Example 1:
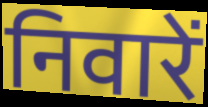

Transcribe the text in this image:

निवारें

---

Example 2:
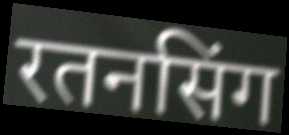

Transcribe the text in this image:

रतनसिंग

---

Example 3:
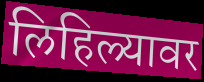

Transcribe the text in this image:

लिहिल्यावर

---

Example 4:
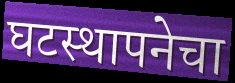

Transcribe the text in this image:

घटस्थापनेचा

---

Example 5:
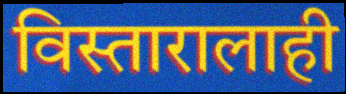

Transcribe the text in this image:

विस्तारालाही